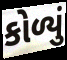
કોળ્યું